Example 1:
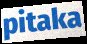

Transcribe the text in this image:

pitaka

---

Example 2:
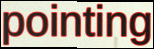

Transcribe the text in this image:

pointing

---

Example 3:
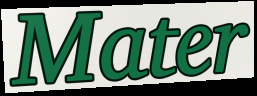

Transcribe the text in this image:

Mater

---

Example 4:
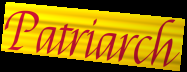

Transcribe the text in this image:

Patriarch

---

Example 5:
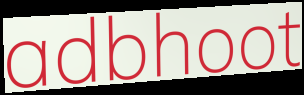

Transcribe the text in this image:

adbhoot